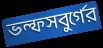
ভল্ফসবুর্গের